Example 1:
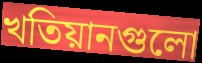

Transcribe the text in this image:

খতিয়ানগুলো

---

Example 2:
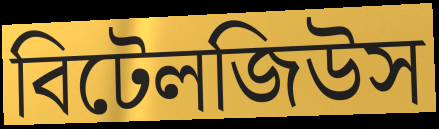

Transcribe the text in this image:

বিটেলজিউস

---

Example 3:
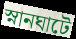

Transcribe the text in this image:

স্নানঘাটে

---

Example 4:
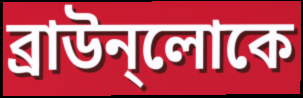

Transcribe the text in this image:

ব্রাউন্লোকে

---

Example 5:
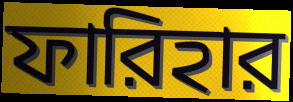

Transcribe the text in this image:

ফারিহার